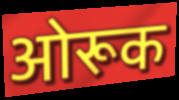
ओरूक